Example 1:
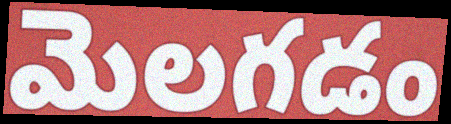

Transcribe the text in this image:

మెలగడం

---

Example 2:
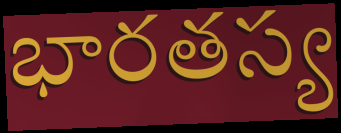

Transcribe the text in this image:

భారతస్య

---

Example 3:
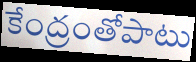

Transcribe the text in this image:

కేంద్రంతోపాటు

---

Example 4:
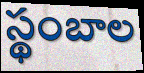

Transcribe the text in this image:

స్థంబాల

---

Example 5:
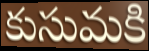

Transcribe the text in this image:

కుసుమకి